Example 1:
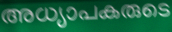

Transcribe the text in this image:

അധ്യാപകരുടെ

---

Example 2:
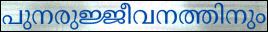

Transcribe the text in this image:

പുനരുജ്ജീവനത്തിനും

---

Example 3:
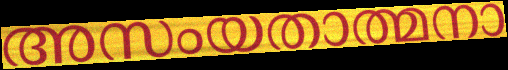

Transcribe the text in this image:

അസംയതാത്മനാ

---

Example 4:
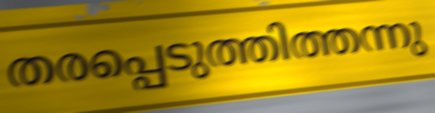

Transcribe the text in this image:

തരപ്പെടുത്തിത്തന്നു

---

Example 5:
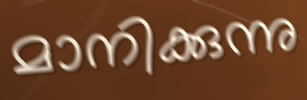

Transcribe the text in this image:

മാനിക്കുന്നു